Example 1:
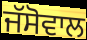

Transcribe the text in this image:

ਜੱਸੋਵਾਲ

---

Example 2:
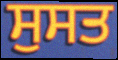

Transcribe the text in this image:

ਸੁਸਤ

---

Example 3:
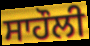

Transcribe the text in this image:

ਸਾਹੌਲੀ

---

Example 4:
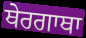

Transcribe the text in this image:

ਥੇਰਗਾਥਾ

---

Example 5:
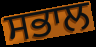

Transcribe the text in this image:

ਸਭਾਲ